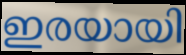
ഇരയായി